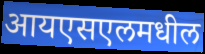
आयएसएलमधील